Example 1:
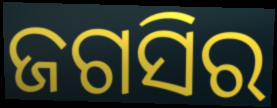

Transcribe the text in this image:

ଜଗସିର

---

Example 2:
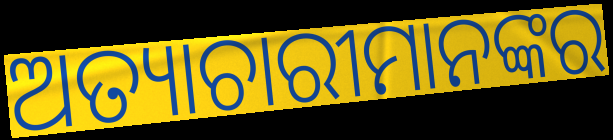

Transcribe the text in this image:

ଅତ୍ୟାଚାରୀମାନଙ୍କର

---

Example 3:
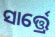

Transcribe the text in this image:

ସାର୍ତ୍ତ୍ରେ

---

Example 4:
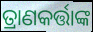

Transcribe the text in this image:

ତ୍ରାଣକର୍ତ୍ତାଙ୍କ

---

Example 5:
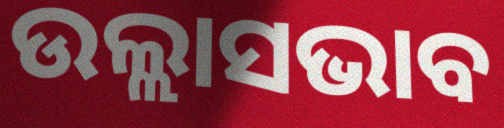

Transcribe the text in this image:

ଉଲ୍ଲାସଭାବ